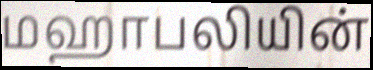
மஹாபலியின்